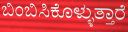
ಬಿಂಬಿಸಿಕೊಳ್ಳುತ್ತಾರೆ